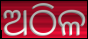
ଅଠିଳ